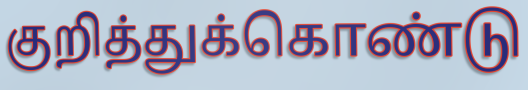
குறித்துக்கொண்டு